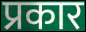
प्रकार